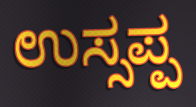
ಉಸ್ಸಪ್ಪ